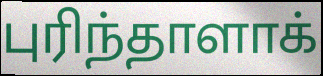
புரிந்தாளாக்